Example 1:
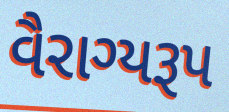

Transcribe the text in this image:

વૈરાગ્યરૂપ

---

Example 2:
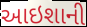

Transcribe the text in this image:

આઇશાની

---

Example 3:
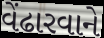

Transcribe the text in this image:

વેંઢારવાને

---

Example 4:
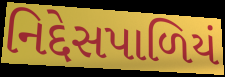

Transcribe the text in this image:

નિદ્દેસપાળિયં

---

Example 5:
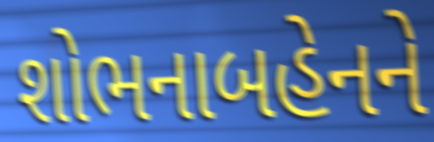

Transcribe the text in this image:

શોભનાબહેનને